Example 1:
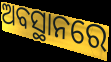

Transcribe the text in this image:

ଅବସ୍ଥାନରେ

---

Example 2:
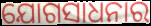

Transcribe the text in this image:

ଯୋଗସାଧନାର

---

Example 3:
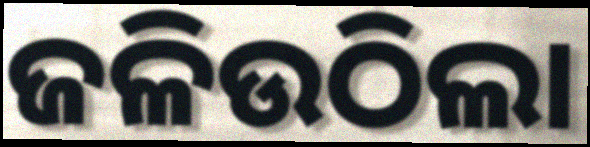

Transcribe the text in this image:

ଜଳିଉଠିଲା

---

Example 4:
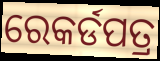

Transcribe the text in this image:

ରେକର୍ଡପତ୍ର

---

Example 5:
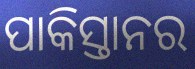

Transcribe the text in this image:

ପାକିସ୍ତାନର